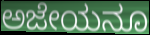
ಅಜೇಯನೂ